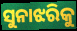
ସୁନାଝରିକୁ